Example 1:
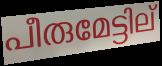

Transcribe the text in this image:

പീരുമേട്ടില്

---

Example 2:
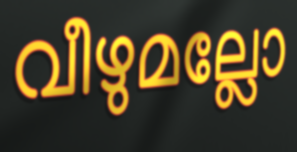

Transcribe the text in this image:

വീഴുമല്ലോ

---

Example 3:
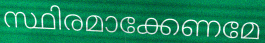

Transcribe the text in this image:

സ്ഥിരമാക്കേണമേ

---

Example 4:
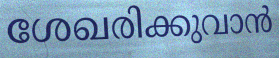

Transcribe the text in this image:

ശേഖരിക്കുവാൻ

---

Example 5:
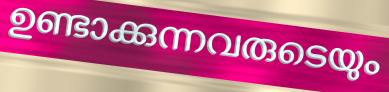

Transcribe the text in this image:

ഉണ്ടാക്കുന്നവരുടെയും